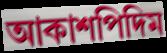
আকাশপিদিম